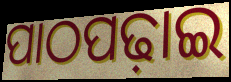
ପାଠପଢ଼ାଇ